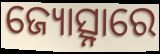
ଜ୍ୟୋତ୍ସ୍ନାରେ